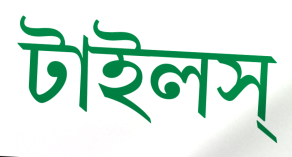
টাইলস্